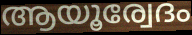
ആയൂര്വേദം